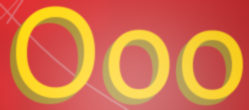
Ooo